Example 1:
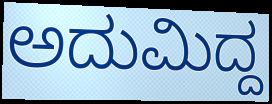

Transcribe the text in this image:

ಅದುಮಿದ್ದ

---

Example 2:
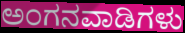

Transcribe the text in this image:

ಅಂಗನವಾಡಿಗಳು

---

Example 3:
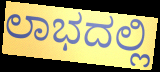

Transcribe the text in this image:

ಲಾಭದಲ್ಲಿ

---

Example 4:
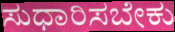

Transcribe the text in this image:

ಸುಧಾರಿಸಬೇಕು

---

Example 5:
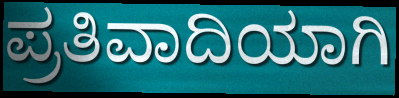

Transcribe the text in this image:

ಪ್ರತಿವಾದಿಯಾಗಿ